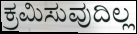
ಕ್ರಮಿಸುವುದಿಲ್ಲ